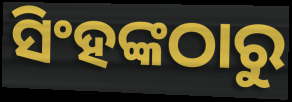
ସିଂହଙ୍କଠାରୁ